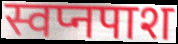
स्वप्नपाश